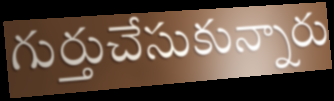
గుర్తుచేసుకున్నారు